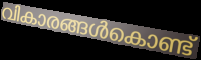
വികാരങ്ങൾകൊണ്ട്